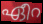
ഏീറ